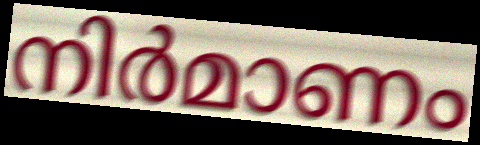
നിർമാണം